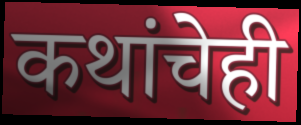
कथांचेही